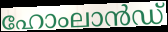
ഹോംലാൻഡ്